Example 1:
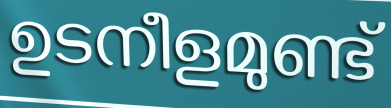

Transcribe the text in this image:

ഉടനീളമുണ്ട്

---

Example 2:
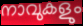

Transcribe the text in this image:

നാവുകളും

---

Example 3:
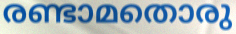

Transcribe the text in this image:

രണ്ടാമതൊരു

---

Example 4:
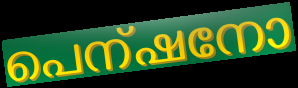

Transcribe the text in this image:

പെന്ഷനോ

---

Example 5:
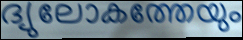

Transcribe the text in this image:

ദ്യുലോകത്തേയും